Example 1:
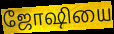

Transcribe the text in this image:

ஜோஷியை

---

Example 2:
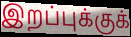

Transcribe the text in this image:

இறப்புக்குக்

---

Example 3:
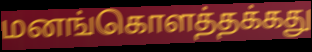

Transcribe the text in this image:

மனங்கொளத்தக்கது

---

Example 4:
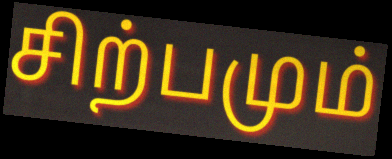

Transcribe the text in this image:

சிற்பமும்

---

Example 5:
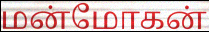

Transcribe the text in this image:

மன்மோகன்